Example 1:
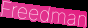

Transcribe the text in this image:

Freedman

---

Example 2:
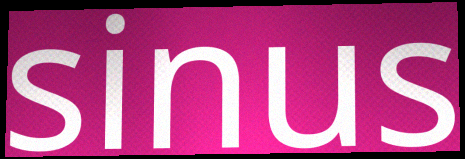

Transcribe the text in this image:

sinus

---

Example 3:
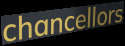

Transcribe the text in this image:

chancellors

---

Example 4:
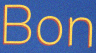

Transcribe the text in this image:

Bon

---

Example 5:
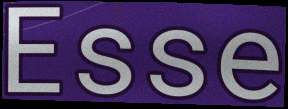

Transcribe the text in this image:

Esse